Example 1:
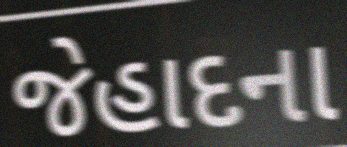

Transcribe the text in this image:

જેહાદના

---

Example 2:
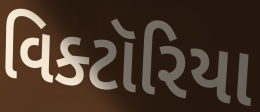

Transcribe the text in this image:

વિક્ટૉરિયા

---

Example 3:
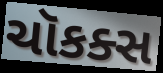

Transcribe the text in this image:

ચૉકક્સ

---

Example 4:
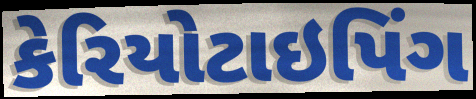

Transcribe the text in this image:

કેરિયોટાઇપિંગ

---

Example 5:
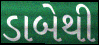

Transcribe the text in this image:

ડાબેથી